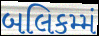
બલિકમ્મં